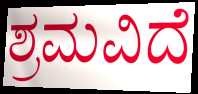
ಶ್ರಮವಿದೆ